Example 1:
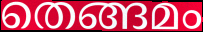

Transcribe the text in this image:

തെങ്ങമം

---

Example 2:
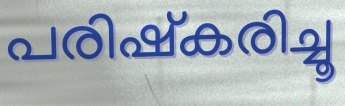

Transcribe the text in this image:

പരിഷ്കരിച്ചൂ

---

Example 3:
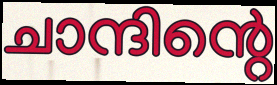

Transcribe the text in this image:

ചാന്ദിന്റെ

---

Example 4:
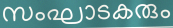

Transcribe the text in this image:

സംഘാടകരും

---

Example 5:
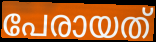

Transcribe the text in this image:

പേരായത്